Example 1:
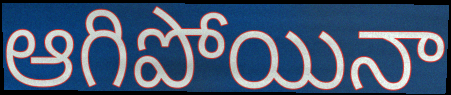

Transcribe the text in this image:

ఆగిపోయినా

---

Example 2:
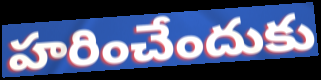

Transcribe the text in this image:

హరించేందుకు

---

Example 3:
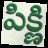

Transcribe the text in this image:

పిక్ణి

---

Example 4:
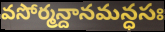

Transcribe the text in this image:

వసోర్మన్దానమన్ధసః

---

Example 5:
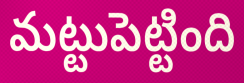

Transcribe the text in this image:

మట్టుపెట్టింది